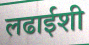
लढाईशी